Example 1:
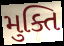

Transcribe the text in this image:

મુક્તિ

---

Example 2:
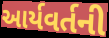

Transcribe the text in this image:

આર્યવર્તની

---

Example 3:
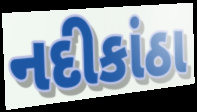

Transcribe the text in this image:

નદીકાંઠા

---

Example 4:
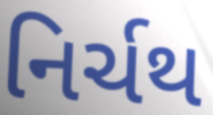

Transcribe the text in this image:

નિર્ચથ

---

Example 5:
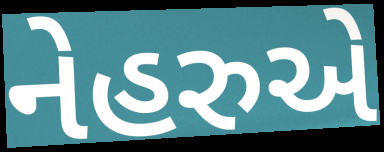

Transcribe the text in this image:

નેહરુએ